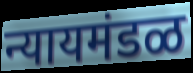
न्यायमंडळ